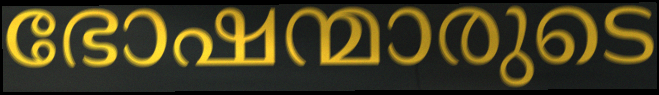
ഭോഷന്മാരുടെ